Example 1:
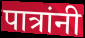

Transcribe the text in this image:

पात्रांनी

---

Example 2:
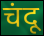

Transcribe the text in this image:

चंदू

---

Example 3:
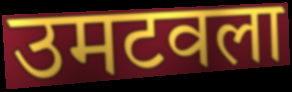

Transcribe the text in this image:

उमटवला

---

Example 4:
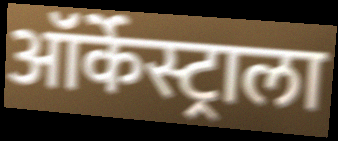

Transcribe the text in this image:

ऑर्केस्ट्राला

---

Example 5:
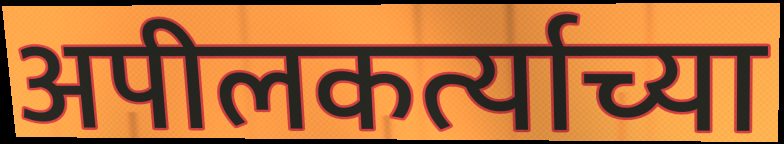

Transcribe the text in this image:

अपीलकर्त्याच्या